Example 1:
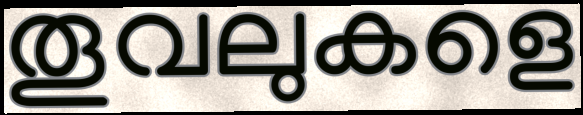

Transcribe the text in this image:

തൂവലുകളെ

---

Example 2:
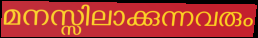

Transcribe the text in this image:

മനസ്സിലാക്കുന്നവരും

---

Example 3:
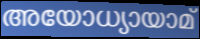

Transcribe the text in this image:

അയോധ്യായാമ്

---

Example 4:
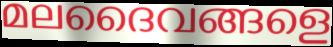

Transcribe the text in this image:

മലദൈവങ്ങളെ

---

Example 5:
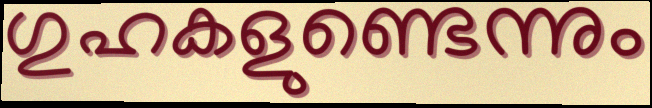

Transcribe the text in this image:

ഗുഹകളുണ്ടെന്നും